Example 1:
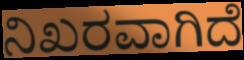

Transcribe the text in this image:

ನಿಖರವಾಗಿದೆ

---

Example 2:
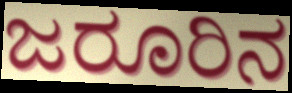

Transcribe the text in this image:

ಜರೂರಿನ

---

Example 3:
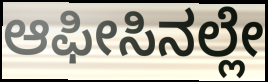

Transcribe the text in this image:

ಆಫೀಸಿನಲ್ಲೇ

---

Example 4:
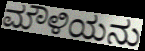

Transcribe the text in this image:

ಮೌಳಿಯನು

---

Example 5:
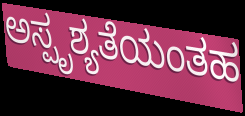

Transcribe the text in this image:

ಅಸ್ಪೃಶ್ಯತೆಯಂತಹ